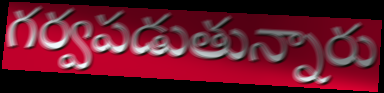
గర్వపడుతున్నారు